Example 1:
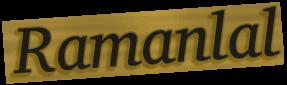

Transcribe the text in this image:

Ramanlal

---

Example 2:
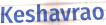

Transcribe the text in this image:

Keshavrao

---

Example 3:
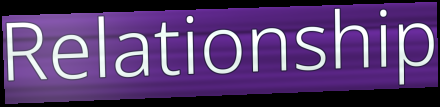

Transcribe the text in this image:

Relationship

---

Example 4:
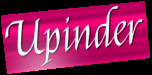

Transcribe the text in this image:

Upinder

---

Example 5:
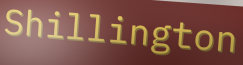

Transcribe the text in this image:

Shillington